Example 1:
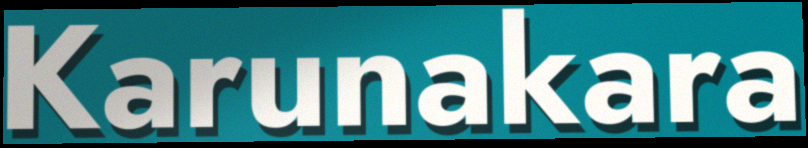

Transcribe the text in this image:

Karunakara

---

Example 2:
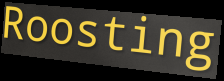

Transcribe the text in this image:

Roosting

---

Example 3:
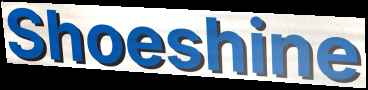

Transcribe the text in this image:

Shoeshine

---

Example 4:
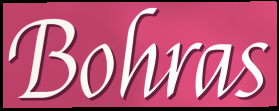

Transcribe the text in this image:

Bohras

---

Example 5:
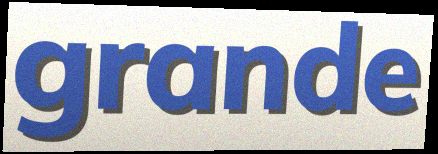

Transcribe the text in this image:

grande